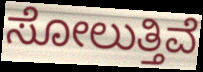
ಸೋಲುತ್ತಿವೆ